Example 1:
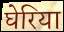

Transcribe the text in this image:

घेरिया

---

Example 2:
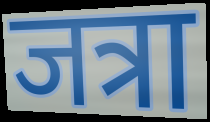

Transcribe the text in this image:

जत्रा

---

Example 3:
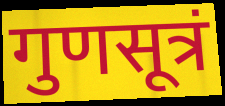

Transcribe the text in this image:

गुणसूत्रं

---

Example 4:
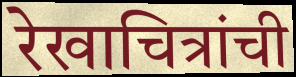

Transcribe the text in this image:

रेखाचित्रांची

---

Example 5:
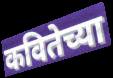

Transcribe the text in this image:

कवितेच्या